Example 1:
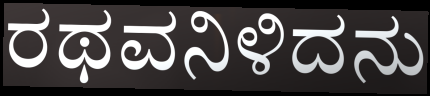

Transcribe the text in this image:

ರಥವನಿಳಿದನು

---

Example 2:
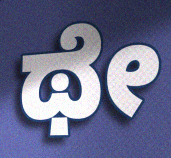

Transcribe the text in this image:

ಥೇ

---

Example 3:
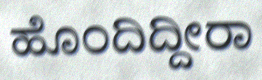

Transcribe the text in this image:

ಹೊಂದಿದ್ದೀರಾ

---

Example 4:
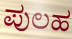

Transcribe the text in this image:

ಪುಲಹ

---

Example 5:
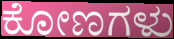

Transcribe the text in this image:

ಕೋಣಗಳು